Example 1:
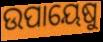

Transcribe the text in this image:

ଉପାୟେଷୁ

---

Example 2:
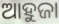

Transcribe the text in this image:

ଆହୁଜା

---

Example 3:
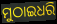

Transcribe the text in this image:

ମୁଠାଇଧରି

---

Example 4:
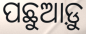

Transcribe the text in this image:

ପଛୁଆଡ଼ୁ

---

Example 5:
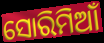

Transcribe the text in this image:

ସୋରିମିଆଁ